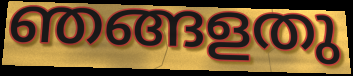
ഞങ്ങളതു